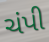
ચંપી